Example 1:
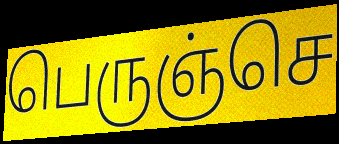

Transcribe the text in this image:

பெருஞ்செ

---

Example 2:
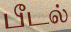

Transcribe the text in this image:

பீடல்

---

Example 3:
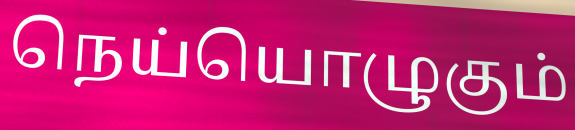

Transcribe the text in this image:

நெய்யொழுகும்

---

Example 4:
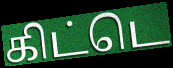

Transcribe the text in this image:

கிட்டெ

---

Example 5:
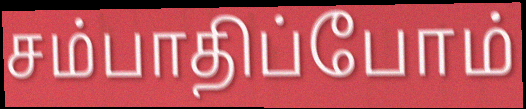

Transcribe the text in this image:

சம்பாதிப்போம்